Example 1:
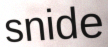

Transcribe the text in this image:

snide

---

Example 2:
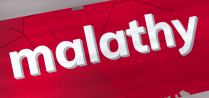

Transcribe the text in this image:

malathy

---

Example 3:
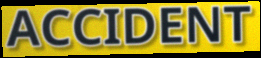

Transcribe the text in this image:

ACCIDENT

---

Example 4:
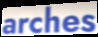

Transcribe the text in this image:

arches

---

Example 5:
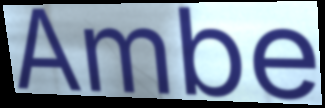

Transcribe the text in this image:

Ambe